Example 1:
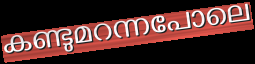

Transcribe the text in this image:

കണ്ടുമറന്നപോലെ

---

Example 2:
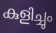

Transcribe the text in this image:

കുളിച്ചും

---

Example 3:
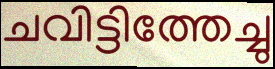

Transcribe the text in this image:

ചവിട്ടിത്തേച്ചു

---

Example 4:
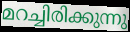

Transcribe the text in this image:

മറച്ചിരിക്കുന്നു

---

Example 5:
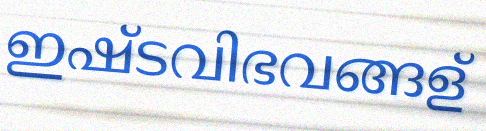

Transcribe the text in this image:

ഇഷ്ടവിഭവങ്ങള്